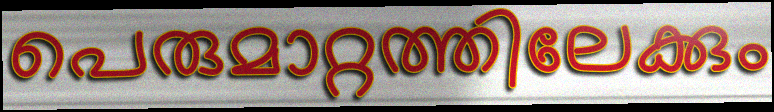
പെരുമാറ്റത്തിലേക്കും